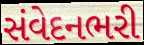
સંવેદનભરી